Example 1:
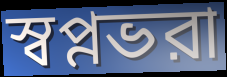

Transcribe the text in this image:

স্বপ্নভরা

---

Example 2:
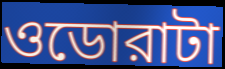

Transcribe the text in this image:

ওডোরাটা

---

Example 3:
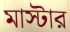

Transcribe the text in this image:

মাস্টার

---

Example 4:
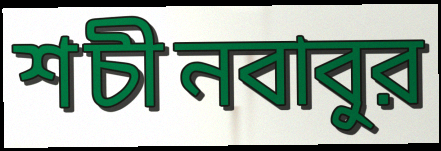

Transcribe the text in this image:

শচীনবাবুর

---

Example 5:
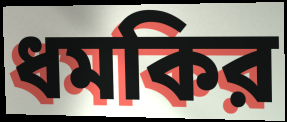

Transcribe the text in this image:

ধমকির